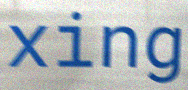
xing